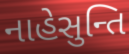
નાહેસુન્તિ